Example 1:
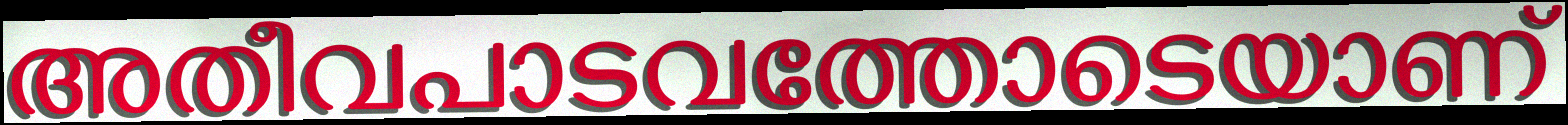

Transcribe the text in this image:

അതീവപാടവത്തോടെയാണ്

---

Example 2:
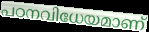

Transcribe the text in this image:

പഠനവിധേയമാണ്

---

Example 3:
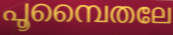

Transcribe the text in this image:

പൂമ്പൈതലേ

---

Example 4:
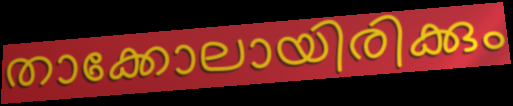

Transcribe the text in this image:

താക്കോലായിരിക്കും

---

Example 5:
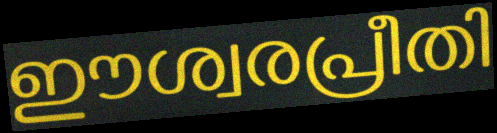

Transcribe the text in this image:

ഈശ്വരപ്രീതി